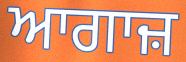
ਆਗਾਜ਼